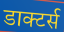
डाक्टर्स